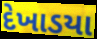
દેખાડયા